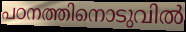
പഠനത്തിനൊടുവിൽ